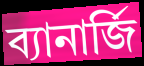
ব্যানার্জি